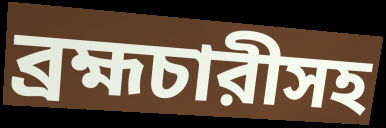
ব্রহ্মচারীসহ